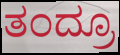
ತಂದ್ರೂ